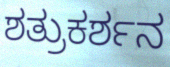
ಶತ್ರುಕರ್ಶನ